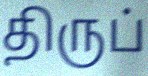
திருப்